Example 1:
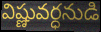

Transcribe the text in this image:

విష్ణువర్ధనుడి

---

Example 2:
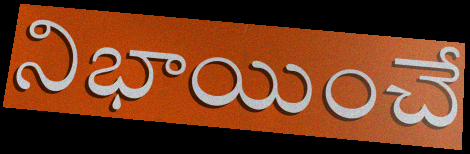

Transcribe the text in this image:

నిభాయించే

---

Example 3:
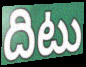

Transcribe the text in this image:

దిటు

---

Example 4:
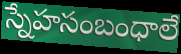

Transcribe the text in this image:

స్నేహసంబంధాలే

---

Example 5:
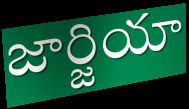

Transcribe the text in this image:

జార్జియా